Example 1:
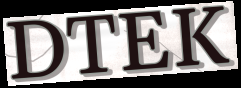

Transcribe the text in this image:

DTEK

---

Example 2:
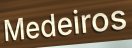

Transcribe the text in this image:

Medeiros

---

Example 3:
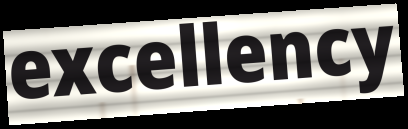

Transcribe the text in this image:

excellency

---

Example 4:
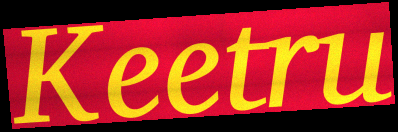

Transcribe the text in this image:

Keetru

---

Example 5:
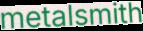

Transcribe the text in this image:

metalsmith